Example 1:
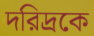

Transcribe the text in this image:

দরিদ্রকে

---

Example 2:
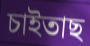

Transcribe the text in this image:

চাইতাছ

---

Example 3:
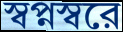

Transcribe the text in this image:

স্বপ্নস্বরে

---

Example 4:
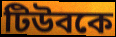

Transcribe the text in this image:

টিউবকে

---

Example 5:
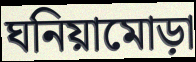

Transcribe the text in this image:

ঘনিয়ামোড়া